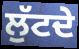
ਲੁੱਟਦੇ